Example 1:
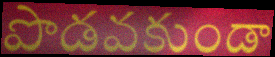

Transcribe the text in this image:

పొడవకుండా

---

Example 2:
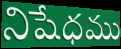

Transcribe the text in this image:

నిషేధము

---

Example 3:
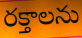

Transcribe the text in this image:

రక్తాలను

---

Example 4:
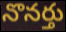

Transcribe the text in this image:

నొనర్తు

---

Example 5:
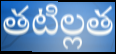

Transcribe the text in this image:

తటిల్లత